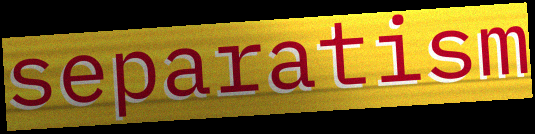
separatism